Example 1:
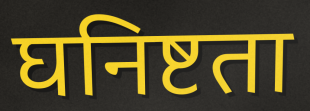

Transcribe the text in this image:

घनिष्टता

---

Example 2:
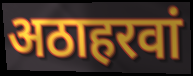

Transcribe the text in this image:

अठाहरवां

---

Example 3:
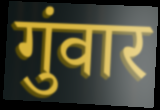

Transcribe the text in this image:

गुंवार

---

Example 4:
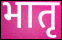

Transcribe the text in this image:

भातृ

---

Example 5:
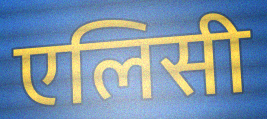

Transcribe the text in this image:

एलिसी